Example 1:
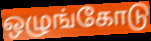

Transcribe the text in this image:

ஒழுங்கோடு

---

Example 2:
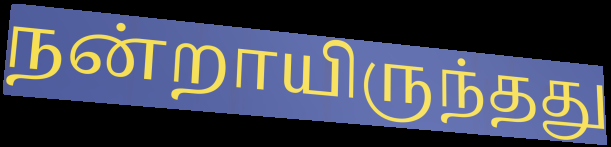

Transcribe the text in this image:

நன்றாயிருந்தது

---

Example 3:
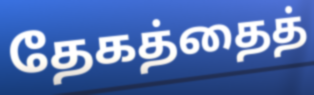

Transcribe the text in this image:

தேகத்தைத்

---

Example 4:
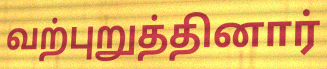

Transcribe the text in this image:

வற்புறுத்தினார்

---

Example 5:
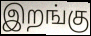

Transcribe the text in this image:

இறங்கு